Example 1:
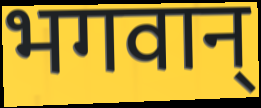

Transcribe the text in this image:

भगवान्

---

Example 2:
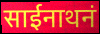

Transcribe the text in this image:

साईनाथनं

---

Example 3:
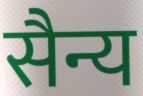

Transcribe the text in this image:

सैन्य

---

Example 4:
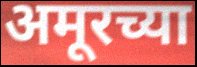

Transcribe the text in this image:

अमूरच्या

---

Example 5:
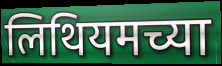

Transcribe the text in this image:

लिथियमच्या